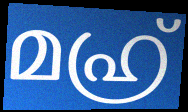
മഹ്ര്